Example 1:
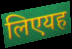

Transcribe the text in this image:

लिएयह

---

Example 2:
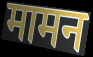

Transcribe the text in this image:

मामन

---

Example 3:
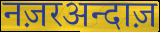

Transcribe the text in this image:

नज़रअन्दाज़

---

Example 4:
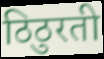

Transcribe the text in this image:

ठिठुरती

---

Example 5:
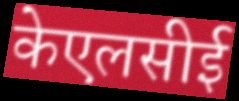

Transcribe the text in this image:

केएलसीई